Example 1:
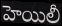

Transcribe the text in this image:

హెయిలీ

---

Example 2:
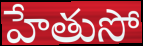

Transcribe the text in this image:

హేతుసో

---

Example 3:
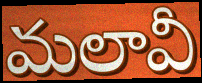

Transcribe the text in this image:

మలావీ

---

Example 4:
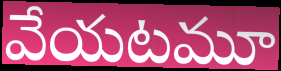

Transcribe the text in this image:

వేయటమూ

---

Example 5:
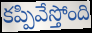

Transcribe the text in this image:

కప్పివేస్తోంది